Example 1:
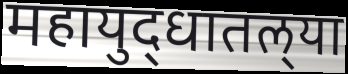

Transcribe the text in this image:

महायुद्धातल्या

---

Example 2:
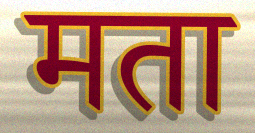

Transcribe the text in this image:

मता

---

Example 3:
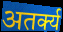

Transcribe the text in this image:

अतर्क्य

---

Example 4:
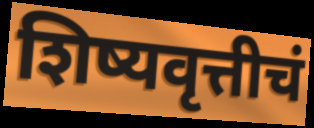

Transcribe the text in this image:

शिष्यवृत्तीचं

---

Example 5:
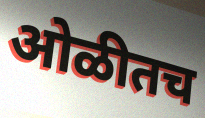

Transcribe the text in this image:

ओळीतच